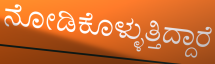
ನೋಡಿಕೊಳ್ಳುತ್ತಿದ್ದಾರೆ